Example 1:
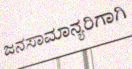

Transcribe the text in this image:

ಜನಸಾಮಾನ್ಯರಿಗಾಗಿ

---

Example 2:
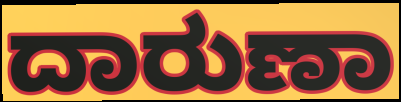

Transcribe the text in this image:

ದಾರುಣಾ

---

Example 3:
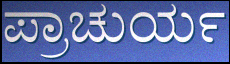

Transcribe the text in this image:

ಪ್ರಾಚುರ್ಯ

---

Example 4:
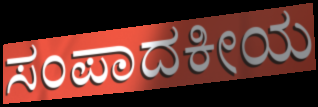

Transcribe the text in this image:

ಸಂಪಾದಕೀಯ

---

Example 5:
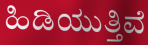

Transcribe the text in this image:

ಹಿಡಿಯುತ್ತಿವೆ